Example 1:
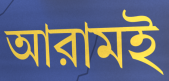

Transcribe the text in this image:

আরামই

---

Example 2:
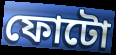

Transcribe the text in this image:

ফোটো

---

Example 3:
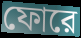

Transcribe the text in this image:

ফোরে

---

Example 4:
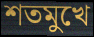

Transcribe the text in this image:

শতমুখে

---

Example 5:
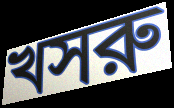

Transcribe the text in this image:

খসরু